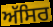
ਅੱਸਿਰ